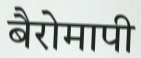
बैरोमापी